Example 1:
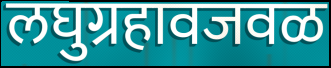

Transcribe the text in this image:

लघुग्रहावजवळ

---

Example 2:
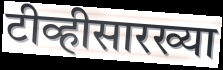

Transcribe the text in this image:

टीव्हीसारख्या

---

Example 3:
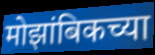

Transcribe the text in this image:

मोझांबिकच्या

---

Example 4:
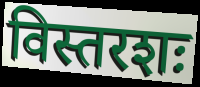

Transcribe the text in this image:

विस्तरशः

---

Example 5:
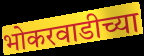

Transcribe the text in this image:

भोकरवाडीच्या